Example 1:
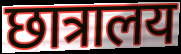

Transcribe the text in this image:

छात्रालय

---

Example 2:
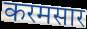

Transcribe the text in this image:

करमसार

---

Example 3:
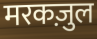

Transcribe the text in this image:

मरकज़ुल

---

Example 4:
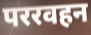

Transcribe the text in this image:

पररवहन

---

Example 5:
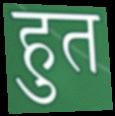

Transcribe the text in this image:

हुत